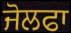
ਜੋਲਫਾ